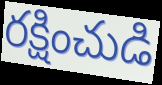
రక్షించుడి